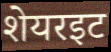
शेयरइट